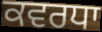
ਕਵਰਧਾ